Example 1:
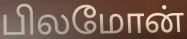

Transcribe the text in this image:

பிலமோன்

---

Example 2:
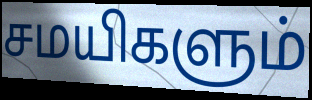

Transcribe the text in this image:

சமயிகளும்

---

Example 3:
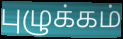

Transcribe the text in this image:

புழுக்கம்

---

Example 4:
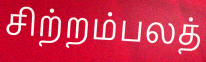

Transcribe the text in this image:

சிற்றம்பலத்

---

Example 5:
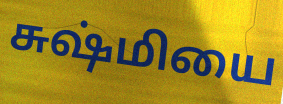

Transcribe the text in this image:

சுஷ்மியை